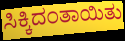
ಸಿಕ್ಕಿದಂತಾಯಿತು